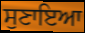
ਸੁਣਾਇਆ